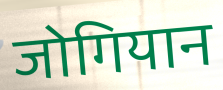
जोगियान